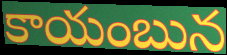
కాయంబున